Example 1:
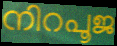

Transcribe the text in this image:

നിറപൂജ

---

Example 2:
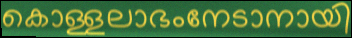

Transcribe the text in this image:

കൊള്ളലാഭംനേടാനായി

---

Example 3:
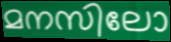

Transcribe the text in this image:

മനസിലോ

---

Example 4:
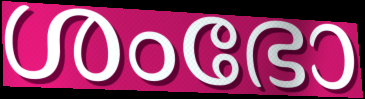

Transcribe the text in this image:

ശംഭോ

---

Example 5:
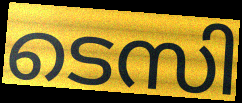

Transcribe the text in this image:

ടെസി